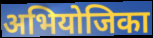
अभियोजिका